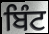
ਬਿੰਟ